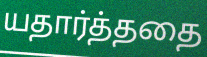
யதார்த்ததை